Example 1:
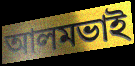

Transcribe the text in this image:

আলমভাই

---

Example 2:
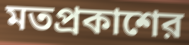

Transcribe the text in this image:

মতপ্রকাশের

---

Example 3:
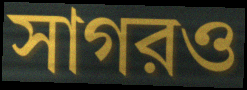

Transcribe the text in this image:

সাগরও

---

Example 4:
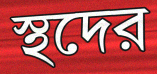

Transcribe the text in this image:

স্থদের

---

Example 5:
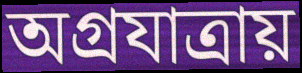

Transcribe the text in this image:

অগ্রযাত্রায়